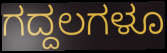
ಗದ್ದಲಗಳೂ